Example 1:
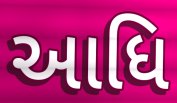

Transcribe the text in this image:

આધિ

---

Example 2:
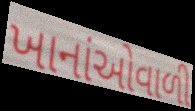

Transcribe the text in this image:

ખાનાંઓવાળી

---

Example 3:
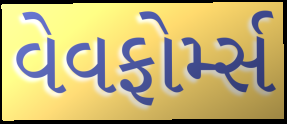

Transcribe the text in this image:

વેવફોર્મ્સ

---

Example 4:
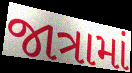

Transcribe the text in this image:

જાત્રામાં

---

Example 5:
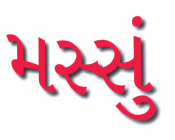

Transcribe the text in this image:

મસ્સું